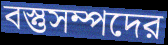
বস্তুসম্পদের